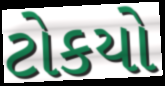
ટોકયો